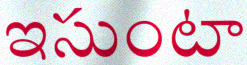
ఇసుంటా